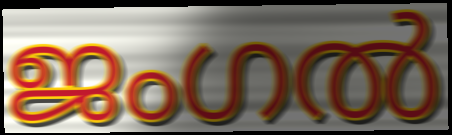
ജംഗൽ